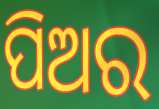
ପିଅର